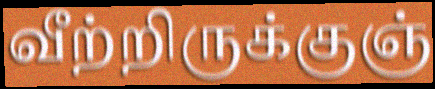
வீற்றிருக்குஞ்